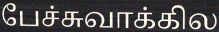
பேச்சுவாக்கில